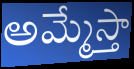
అమ్మేస్తా